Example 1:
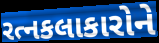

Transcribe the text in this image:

રત્નકલાકારોને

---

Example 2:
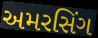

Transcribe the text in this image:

અમરસિંગ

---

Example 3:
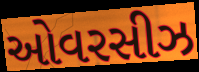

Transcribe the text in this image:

ઓવરસીઝ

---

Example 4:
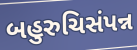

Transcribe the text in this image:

બહુરુચિસંપન્ન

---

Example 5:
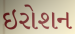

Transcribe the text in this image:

ઇરોશન